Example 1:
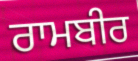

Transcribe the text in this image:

ਰਾਮਬੀਰ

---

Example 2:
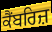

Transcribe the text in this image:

ਕੈਂਬਰਿਜ਼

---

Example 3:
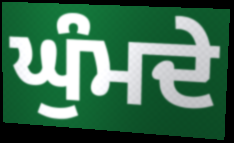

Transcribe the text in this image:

ਘੁੰਮਦੇ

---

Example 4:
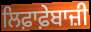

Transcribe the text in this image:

ਲਿਫ਼ਾਫ਼ੇਬਾਜ਼ੀ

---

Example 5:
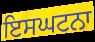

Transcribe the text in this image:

ਇਸਘਟਨਾ